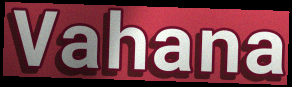
Vahana